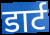
डार्ट